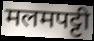
मलमपट्टी